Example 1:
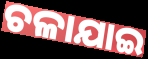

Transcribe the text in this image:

ଚଳାଯାଇ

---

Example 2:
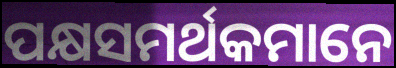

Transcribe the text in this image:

ପକ୍ଷସମର୍ଥକମାନେ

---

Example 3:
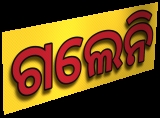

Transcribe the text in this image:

ଗଲେନି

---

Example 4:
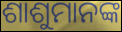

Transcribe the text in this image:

ଶାଶୁମାନଙ୍କ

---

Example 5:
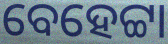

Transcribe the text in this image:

ବେହେଟ୍ଟା